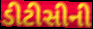
ડીટીસીની